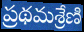
ప్రథమశ్రేణి